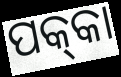
ପକ୍‍କା